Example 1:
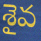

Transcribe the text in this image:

శైవ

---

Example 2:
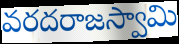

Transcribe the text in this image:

వరదరాజస్వామి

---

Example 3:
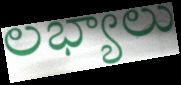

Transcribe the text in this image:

లభ్యాలు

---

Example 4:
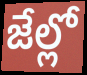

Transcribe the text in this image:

జేల్లో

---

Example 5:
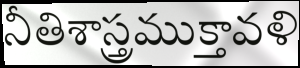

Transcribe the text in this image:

నీతిశాస్త్రముక్తావళి